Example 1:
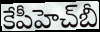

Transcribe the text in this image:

కేపీహెచ్‌బీ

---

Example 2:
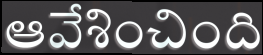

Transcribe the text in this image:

ఆవేశించింది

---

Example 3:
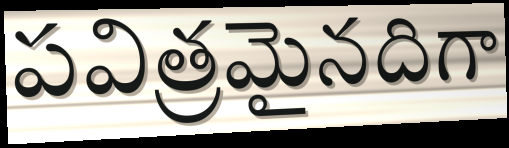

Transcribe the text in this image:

పవిత్రమైనదిగా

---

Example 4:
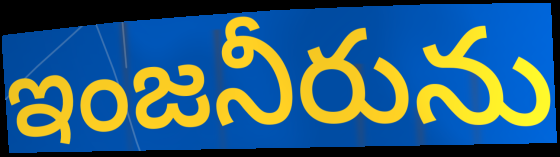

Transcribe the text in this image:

ఇంజనీరును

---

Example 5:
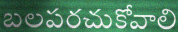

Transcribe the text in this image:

బలపరచుకోవాలి